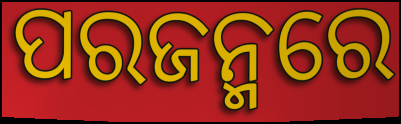
ପରଜନ୍ମରେ